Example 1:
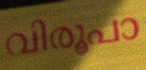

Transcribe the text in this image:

വിരൂപാ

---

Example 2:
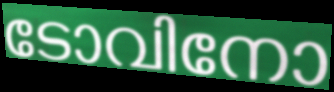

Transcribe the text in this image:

ടോവിനോ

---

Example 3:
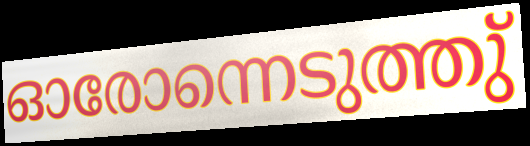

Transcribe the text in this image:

ഓരോന്നെടുത്തു്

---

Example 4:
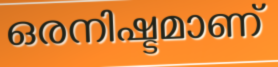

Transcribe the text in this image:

ഒരനിഷ്ടമാണ്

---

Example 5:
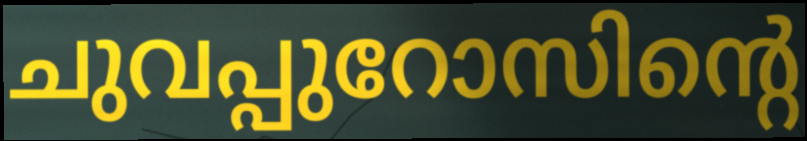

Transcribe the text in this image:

ചുവപ്പുറോസിന്റെ